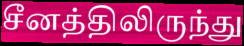
சீனத்திலிருந்து